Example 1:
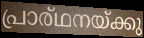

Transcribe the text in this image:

പ്രാര്ഥനയ്ക്കു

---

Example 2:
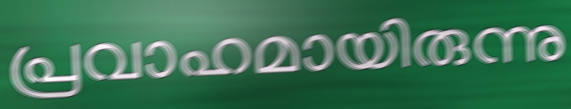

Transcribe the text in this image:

പ്രവാഹമായിരുന്നു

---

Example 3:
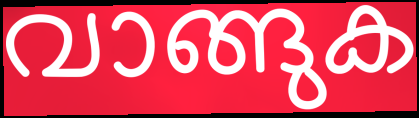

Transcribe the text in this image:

വാങ്ങുക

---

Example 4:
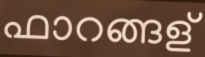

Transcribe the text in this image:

ഫാറങ്ങള്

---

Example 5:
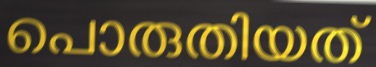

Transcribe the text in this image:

പൊരുതിയത്